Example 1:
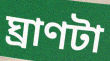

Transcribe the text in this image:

ঘ্রাণটা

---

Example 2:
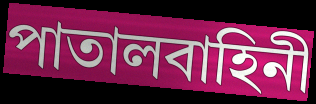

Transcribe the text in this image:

পাতালবাহিনী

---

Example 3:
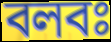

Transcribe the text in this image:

বলবঃ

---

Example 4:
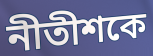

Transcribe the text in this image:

নীতীশকে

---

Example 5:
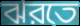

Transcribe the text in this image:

ঝরতে